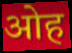
ओह